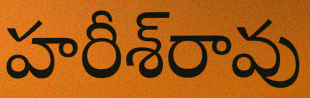
హరీశ్‌రావు